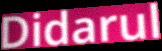
Didarul